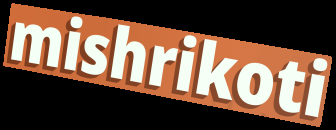
mishrikoti